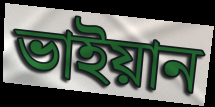
ভাইয়ান